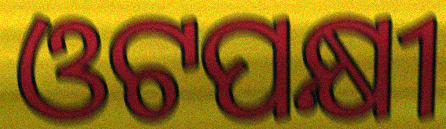
ଓଟପକ୍ଷୀ